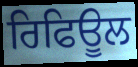
ਰਿਫਿਊਲ